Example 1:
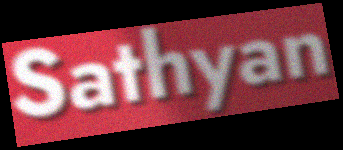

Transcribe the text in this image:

Sathyan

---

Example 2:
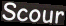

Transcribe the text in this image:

Scour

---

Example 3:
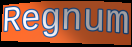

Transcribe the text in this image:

Regnum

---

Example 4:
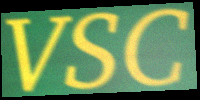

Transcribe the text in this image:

VSC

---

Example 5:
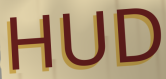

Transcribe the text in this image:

HUD